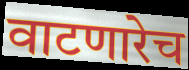
वाटणारेच